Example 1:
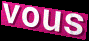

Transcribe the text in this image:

vous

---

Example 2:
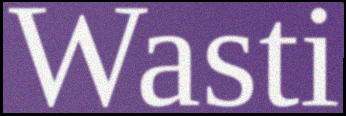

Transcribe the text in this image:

Wasti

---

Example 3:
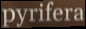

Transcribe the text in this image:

pyrifera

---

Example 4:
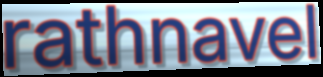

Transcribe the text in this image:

rathnavel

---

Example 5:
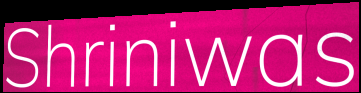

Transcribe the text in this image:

Shriniwas